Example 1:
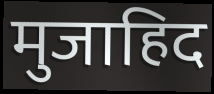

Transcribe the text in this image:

मुजाहिद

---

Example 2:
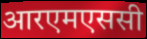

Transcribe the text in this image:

आरएमएससी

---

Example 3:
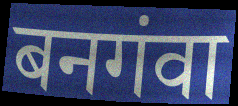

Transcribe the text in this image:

बनगंवा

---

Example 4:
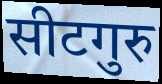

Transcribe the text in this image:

सीटगुरु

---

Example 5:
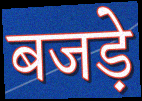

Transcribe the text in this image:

बजड़े